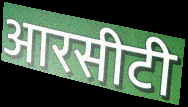
आरसीटी